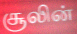
சூலின்